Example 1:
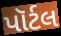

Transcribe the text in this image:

પૉર્ટલ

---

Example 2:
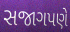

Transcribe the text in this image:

સજાગપણે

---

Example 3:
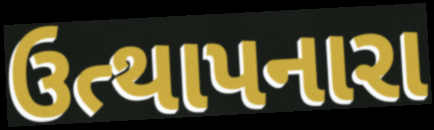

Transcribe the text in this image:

ઉત્થાપનારા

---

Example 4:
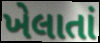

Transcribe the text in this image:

ખેલાતાં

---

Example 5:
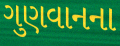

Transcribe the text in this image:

ગુણવાનના